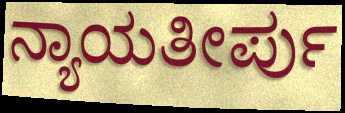
ನ್ಯಾಯತೀರ್ಪು